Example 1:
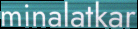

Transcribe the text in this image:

minalatkar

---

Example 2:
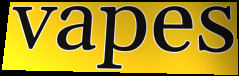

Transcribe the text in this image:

vapes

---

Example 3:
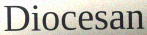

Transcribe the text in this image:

Diocesan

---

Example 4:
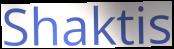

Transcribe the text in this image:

Shaktis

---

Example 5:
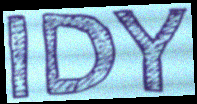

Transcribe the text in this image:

IDY